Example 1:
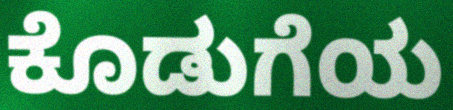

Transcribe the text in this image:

ಕೊಡುಗೆಯ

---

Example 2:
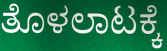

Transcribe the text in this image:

ತೊಳಲಾಟಕ್ಕೆ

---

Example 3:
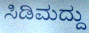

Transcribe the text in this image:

ಸಿಡಿಮದ್ದು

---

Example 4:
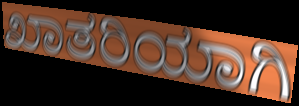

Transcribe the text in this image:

ಖಾತರಿಯಾಗಿ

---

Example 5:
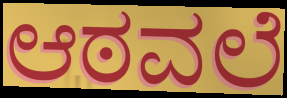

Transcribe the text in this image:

ಆಠವಲೆ